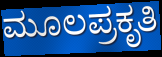
ಮೂಲಪ್ರಕೃತಿ